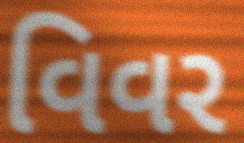
વિવર